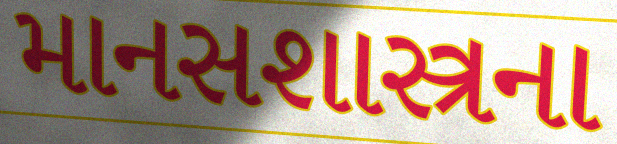
માનસશાસ્ત્રના